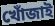
খোঁজাই